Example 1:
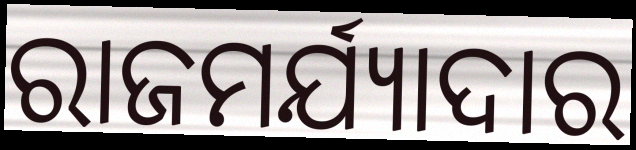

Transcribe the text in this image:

ରାଜମର୍ଯ୍ୟାଦାର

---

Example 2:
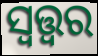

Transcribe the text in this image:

ସ୍ୱତ୍ତ୍ୱର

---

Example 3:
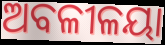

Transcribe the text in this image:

ଅବଳୀଳୟା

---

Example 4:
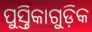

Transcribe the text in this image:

ପୁସ୍ତିକାଗୁଡ଼ିକ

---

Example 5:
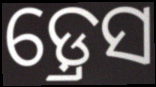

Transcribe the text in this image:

ଡ଼୍ରେସ